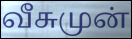
வீசுமுன்